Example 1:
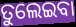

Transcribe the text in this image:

ତୁଲେଇବା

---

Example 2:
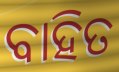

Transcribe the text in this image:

ବାହିତ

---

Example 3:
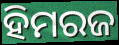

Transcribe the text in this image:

ହିମରଜ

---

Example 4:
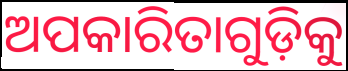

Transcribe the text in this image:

ଅପକାରିତାଗୁଡ଼ିକୁ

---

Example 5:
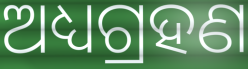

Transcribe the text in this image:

ଅଧ୍ୟଗ୍ରହଣ